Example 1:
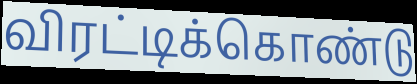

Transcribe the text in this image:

விரட்டிக்கொண்டு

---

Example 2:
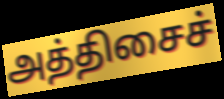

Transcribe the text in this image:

அத்திசைச்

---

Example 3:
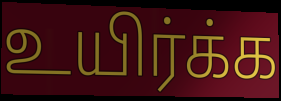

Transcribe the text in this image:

உயிர்க்க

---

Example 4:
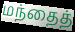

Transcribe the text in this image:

மந்தைத்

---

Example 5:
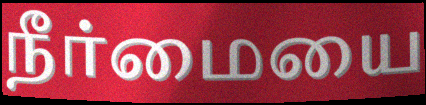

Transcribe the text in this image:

நீர்மையை